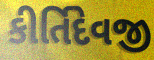
કીર્તિદેવજી